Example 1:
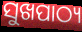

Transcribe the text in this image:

ସୁଖପାଠ୍ୟ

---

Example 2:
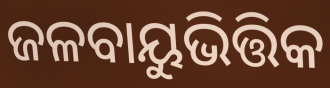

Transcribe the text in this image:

ଜଳବାୟୁଭିତ୍ତିକ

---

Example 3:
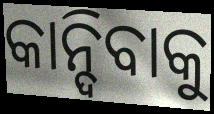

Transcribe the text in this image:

କାନ୍ଦିବାକୁ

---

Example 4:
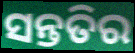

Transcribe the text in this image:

ସନ୍ତତିର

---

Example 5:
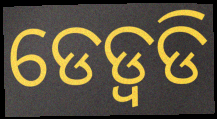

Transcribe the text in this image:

ଡେଡ୍ବଡି